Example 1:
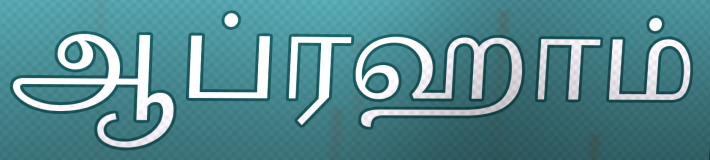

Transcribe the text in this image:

ஆப்ரஹாம்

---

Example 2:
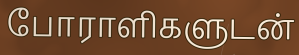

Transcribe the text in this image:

போராளிகளுடன்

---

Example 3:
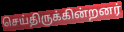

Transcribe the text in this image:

செய்திருக்கின்றனர்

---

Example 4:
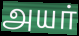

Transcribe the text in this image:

அயர்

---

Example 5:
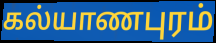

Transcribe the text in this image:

கல்யாணபுரம்